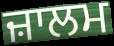
ਜ਼ਾਲਮ